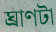
ঘ্রাণটা